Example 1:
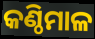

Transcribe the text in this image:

କଣ୍ଠିମାଳ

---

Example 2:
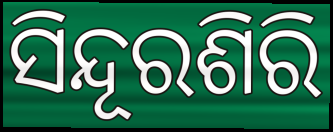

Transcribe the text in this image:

ସିନ୍ଦୂରଶିରି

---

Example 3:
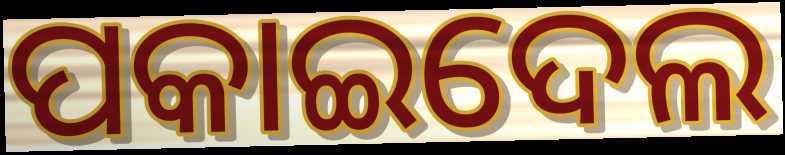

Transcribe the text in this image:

ପକାଇଦେଲ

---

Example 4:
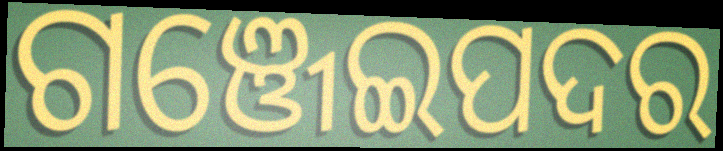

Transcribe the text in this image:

ଗଞ୍ଜେଇପଦର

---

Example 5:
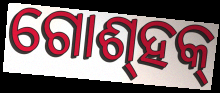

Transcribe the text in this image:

ଗୋଶ୍‍ହକ୍